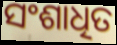
ସଂଶାଧିତ